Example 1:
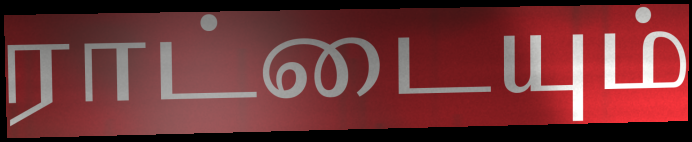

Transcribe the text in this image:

ராட்டையும்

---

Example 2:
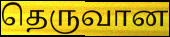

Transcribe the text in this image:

தெருவான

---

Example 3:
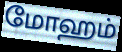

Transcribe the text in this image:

மோஹம்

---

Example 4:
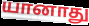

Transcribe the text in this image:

யானாது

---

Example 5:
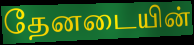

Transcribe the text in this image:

தேனடையின்